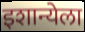
इशान्येला